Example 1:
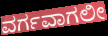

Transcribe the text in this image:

ವರ್ಗವಾಗಲೀ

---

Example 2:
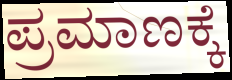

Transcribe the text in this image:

ಪ್ರಮಾಣಕ್ಕೆ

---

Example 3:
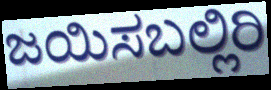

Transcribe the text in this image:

ಜಯಿಸಬಲ್ಲಿರಿ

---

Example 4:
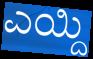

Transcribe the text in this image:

ಎಯ್ದಿ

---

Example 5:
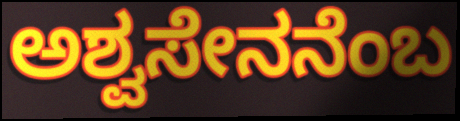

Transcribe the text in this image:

ಅಶ್ವಸೇನನೆಂಬ